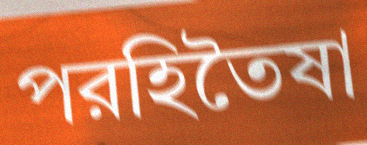
পরহিতৈষা